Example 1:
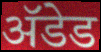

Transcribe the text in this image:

ॲडेड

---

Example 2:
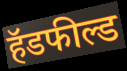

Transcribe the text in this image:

हॅडफील्ड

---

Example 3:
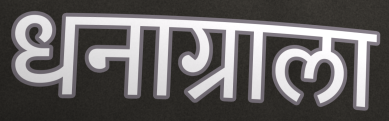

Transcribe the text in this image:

धनाग्राला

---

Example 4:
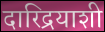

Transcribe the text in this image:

दारिद्रयाशी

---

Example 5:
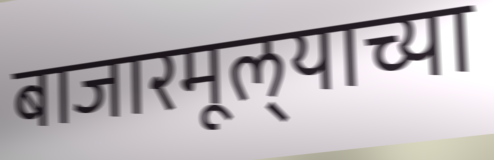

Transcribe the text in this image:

बाजारमूल्याच्या